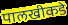
पालखीकडे